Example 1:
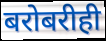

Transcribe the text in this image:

बरोबरीही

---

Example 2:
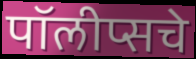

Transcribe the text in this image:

पॉलीप्सचे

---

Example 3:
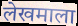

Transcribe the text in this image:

लेखमाला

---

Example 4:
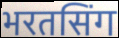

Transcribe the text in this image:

भरतसिंग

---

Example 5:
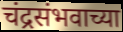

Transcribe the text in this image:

चंद्रसंभवाच्या